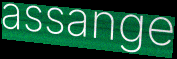
assange